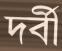
দর্বী